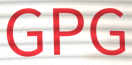
GPG